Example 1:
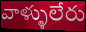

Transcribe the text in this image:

వాళ్ళులేరు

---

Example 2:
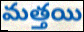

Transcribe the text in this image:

మత్తయి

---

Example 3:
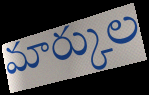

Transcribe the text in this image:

మార్కుల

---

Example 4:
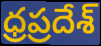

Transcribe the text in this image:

ధ్రప్రదేశ్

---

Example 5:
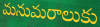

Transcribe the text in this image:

మనుమరాలుకు